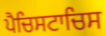
ਪੈਚਿਸਟਾਚਿਸ